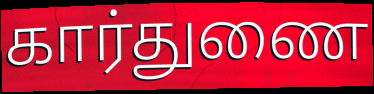
கார்துணை